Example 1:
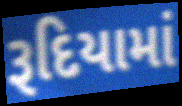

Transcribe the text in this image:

રૂદિયામાં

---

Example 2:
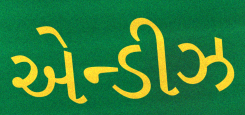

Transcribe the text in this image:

એન્ડીઝ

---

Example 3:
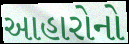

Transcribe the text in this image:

આહારોનો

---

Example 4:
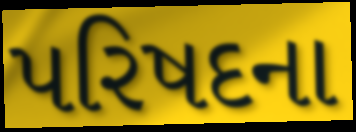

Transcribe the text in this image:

પરિષદના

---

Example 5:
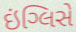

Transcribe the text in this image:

ઇંગ્લિસે